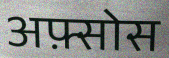
अफ़्सोस